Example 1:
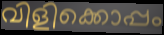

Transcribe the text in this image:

വിളിക്കൊപ്പം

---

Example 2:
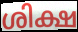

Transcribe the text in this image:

ശിക്ഷ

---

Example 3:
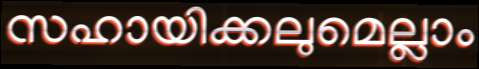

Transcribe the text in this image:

സഹായിക്കലുമെല്ലാം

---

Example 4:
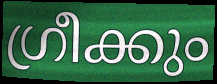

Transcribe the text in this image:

ഗ്രീക്കും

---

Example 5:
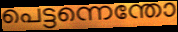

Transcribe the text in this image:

പെട്ടന്നെന്തോ